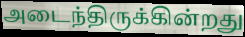
அடைந்திருக்கின்றது